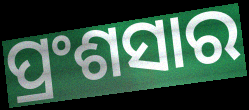
ପ୍ରଂଶସାର